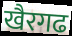
खैरगढ